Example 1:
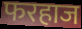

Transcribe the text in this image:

फरहाज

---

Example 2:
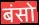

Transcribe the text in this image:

बंसो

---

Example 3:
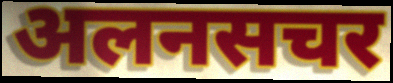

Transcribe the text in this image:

अलनसचर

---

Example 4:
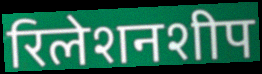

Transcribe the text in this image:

रिलेशनशीप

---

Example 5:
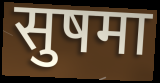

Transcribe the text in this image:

सुषमा